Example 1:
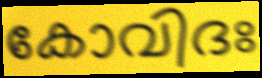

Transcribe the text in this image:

കോവിദഃ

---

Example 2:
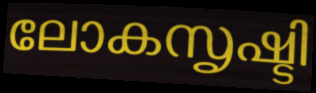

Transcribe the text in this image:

ലോകസൃഷ്ടി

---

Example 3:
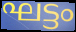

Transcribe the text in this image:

ഘട്ടം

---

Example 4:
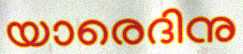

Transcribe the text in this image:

യാരെദിനു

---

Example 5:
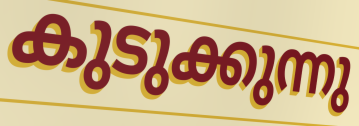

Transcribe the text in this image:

കുടുക്കുന്നു